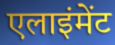
एलाइंमेंट